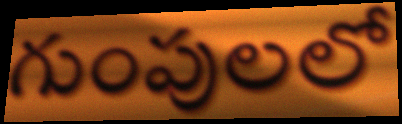
గుంపులలో